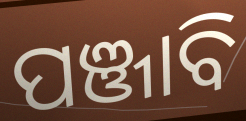
ପଞ୍ଜାବି